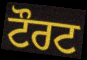
ਟੌਰਟ